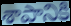
శాపానికి